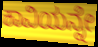
ಕಾವಿಯನ್ನೇ